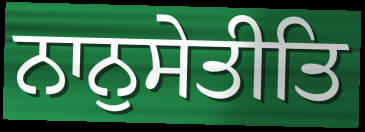
ਨਾਨੁਸੇਤੀਤਿ